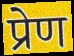
प्रेण